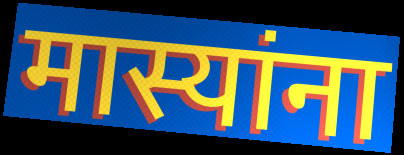
मास्यांना